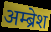
अम्ब्रेश